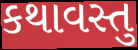
કથાવસ્તુ